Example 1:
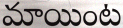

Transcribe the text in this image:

మాయింట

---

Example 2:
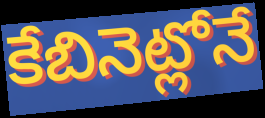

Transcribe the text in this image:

కేబినెట్లోనే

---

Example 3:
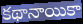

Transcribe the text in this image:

కథానాయికా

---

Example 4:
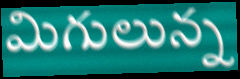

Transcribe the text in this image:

మిగులున్న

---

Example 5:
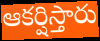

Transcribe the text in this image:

ఆకర్షిస్తారు